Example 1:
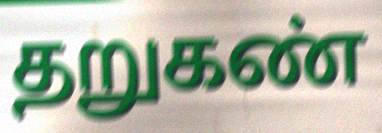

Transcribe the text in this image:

தறுகண்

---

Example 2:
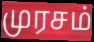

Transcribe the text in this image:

முரசம்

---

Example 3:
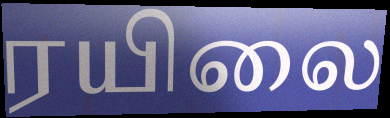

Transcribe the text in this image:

ரயிலை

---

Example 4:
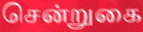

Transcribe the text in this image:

சென்றுகை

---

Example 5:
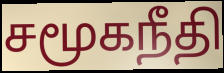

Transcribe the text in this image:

சமூகநீதி